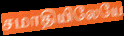
சமாதியிலேயே